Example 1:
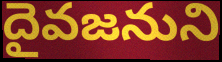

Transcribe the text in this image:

దైవజనుని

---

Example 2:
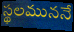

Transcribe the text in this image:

స్థలముననే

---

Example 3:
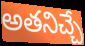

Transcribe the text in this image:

అతనిచ్చే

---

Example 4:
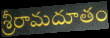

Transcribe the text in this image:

శ్రీరామదూతం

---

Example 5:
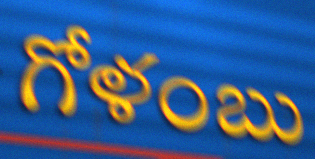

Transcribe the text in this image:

గోళంబు